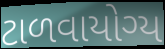
ટાળવાયોગ્ય